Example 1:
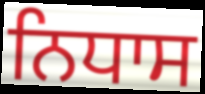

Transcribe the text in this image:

ਨਿਧਾਸ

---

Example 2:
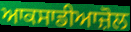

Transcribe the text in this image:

ਆਕਸਾਡੀਆਜ਼ੋਲ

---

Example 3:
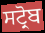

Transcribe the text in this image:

ਸਟ੍ਰੋਬ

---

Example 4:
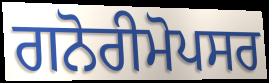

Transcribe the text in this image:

ਗਨੋਰੀਮੋਪਸਰ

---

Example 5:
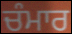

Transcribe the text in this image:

ਚੰਮਾਰ